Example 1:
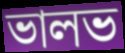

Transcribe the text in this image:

ভালভ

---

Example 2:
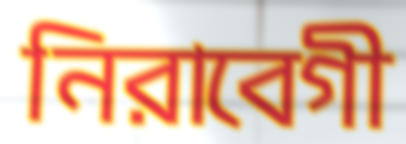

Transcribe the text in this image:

নিরাবেগী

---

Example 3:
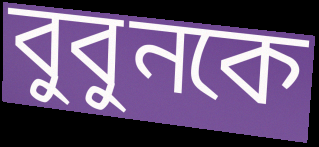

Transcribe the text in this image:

বুবুনকে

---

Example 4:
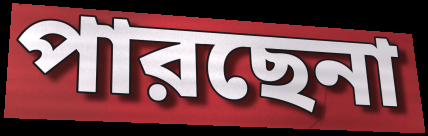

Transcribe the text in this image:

পারছেনা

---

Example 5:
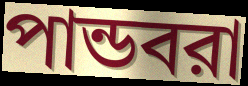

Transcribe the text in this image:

পান্ডবরা